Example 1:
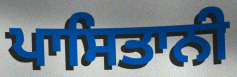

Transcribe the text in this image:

ਪਾਸਿਤਾਨੀ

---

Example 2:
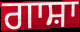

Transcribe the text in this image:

ਗਾਸ਼ਾ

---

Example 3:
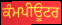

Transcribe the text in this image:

ਕੰਮਪੀਊਟਰ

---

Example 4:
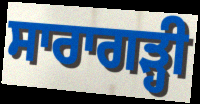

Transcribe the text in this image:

ਸਾਰਾਗੜ੍ਹੀ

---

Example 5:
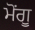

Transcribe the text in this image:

ਮੋਂਗੂ